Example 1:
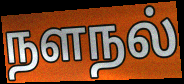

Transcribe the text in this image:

நளநல்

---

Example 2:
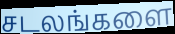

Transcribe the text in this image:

சடலங்களை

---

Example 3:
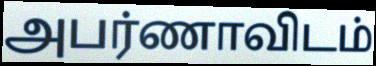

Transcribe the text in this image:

அபர்ணாவிடம்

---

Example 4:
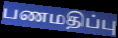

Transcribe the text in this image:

பணமதிப்பு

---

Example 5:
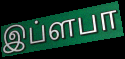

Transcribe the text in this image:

இப்ளபா